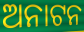
ଅନାଟନ